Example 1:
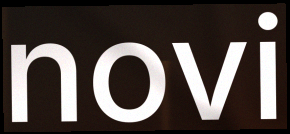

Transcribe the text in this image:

novi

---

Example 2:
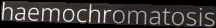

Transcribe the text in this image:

haemochromatosis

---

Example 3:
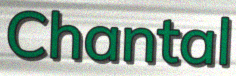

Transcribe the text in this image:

Chantal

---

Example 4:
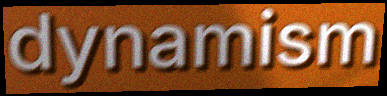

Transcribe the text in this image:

dynamism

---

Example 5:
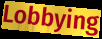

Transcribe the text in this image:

Lobbying